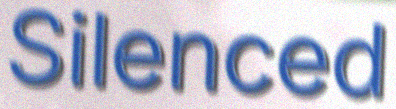
Silenced